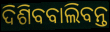
ଦିଶିବବାଲିବନ୍ତ